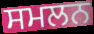
ਸਮਲਨ